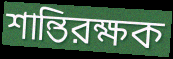
শান্তিরক্ষক